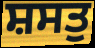
ਸ਼ਸਤੁ